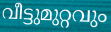
വീട്ടുമുറ്റവും